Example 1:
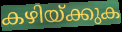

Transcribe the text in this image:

കഴിയ്ക്കുക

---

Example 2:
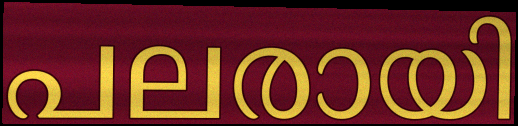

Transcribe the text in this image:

പലരായി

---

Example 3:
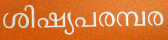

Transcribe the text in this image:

ശിഷ്യപരമ്പര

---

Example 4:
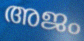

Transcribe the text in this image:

അജം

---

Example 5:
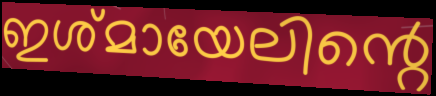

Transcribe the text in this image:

ഇശ്മായേലിന്റെ